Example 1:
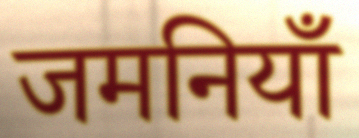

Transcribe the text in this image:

जमनियाँ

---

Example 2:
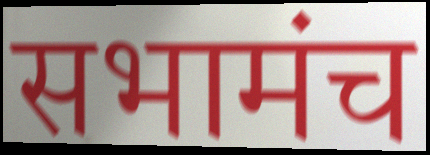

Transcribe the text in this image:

सभामंच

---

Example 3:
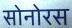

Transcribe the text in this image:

सोनोरस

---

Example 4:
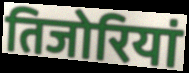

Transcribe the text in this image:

तिजोरियां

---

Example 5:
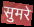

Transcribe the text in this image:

सुमरे